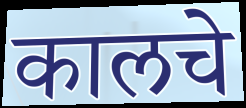
कालचे